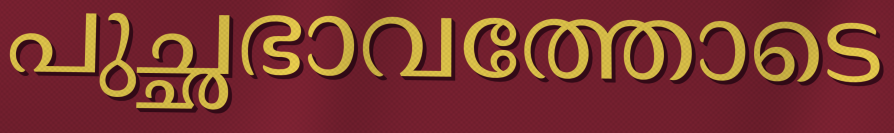
പുച്ഛഭാവത്തോടെ